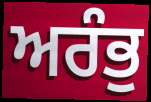
ਅਰੰਭੁ